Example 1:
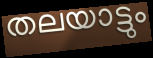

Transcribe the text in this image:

തലയാട്ടും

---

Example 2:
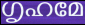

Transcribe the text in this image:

ഗൃഹമേ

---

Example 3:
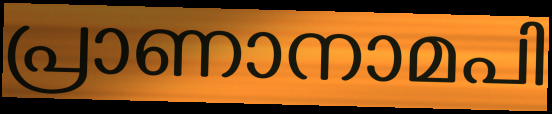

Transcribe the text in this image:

പ്രാണാനാമപി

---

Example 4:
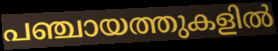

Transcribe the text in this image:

പഞ്ചായത്തുകളിൽ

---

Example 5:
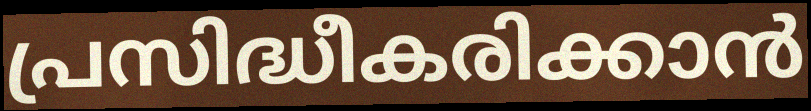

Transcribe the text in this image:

പ്രസിദ്ധീകരിക്കാൻ